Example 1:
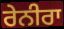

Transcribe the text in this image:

ਰੇਨੀਰਾ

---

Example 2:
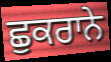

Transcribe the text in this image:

ਛੁਕਰਾਨੇ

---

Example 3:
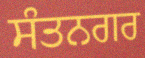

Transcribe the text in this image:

ਸੰਤਨਗਰ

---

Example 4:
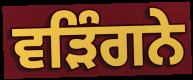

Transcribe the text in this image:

ਵੜਿੰਗਨੇ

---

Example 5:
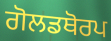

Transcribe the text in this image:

ਗੋਲਡਥੋਰਪ